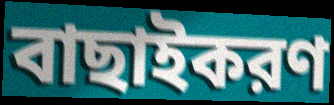
বাছাইকরণ